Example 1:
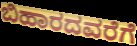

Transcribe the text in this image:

ಬಿಹಾರದವರೆಗೆ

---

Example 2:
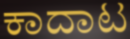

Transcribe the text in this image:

ಕಾದಾಟ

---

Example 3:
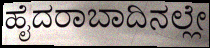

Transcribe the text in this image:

ಹೈದರಾಬಾದಿನಲ್ಲೇ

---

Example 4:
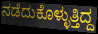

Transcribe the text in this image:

ನಡೆದುಕೊಳ್ಳುತ್ತಿದ್ದ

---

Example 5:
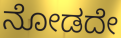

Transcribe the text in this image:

ನೋಡದೇ